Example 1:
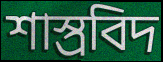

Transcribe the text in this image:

শাস্ত্ৰবিদ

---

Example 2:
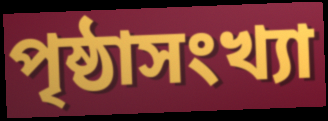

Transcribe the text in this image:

পৃষ্ঠাসংখ্যা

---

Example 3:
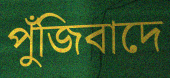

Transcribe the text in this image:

পুঁজিবাদে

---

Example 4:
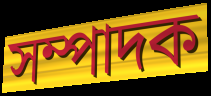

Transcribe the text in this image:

সম্পাদক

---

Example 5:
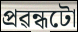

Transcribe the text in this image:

প্ৰৱন্ধটো